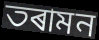
তৰামন